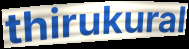
thirukural